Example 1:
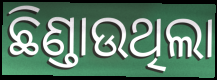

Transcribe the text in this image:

ଛିଣ୍ଡାଉଥିଲା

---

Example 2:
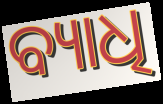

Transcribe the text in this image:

ବ୍ୟାଧି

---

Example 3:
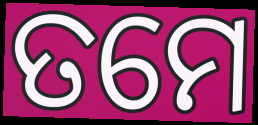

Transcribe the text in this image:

ତମେ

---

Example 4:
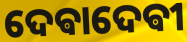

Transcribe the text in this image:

ଦେଵାଦେଵୀ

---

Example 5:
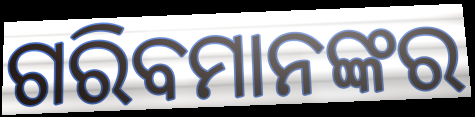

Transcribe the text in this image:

ଗରିବମାନଙ୍କର